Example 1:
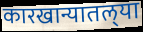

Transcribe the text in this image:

कारखान्यातल्या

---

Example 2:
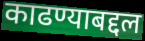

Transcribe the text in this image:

काढण्याबद्दल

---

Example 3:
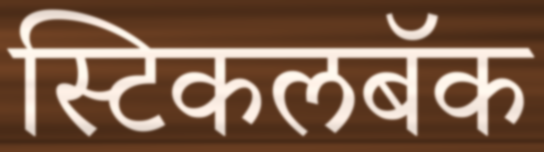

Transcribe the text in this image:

स्टिकलबॅक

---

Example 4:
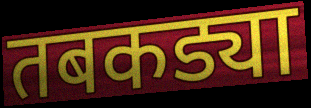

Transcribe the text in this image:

तबकड्या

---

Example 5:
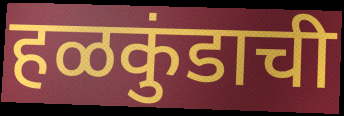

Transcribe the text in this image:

हळकुंडाची